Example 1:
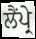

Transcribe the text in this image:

ਲੈਂਪ੍ਰੇ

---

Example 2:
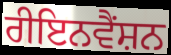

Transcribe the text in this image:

ਰੀਇਨਵੈਂਸ਼ਨ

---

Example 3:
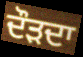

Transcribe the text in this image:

ਦੌੜਦਾ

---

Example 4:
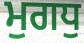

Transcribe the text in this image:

ਮੁਗਧੁ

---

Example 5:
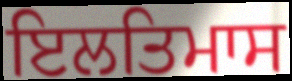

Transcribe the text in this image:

ਇਲਤਿਮਾਸ